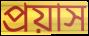
প্ৰয়াস